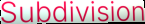
Subdivision